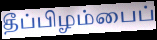
தீப்பிழம்பைப்